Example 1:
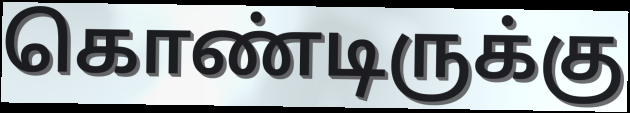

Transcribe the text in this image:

கொண்டிருக்கு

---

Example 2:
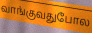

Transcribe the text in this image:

வாங்குவதுபோல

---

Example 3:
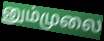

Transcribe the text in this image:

னும்முலை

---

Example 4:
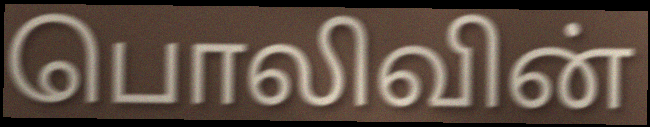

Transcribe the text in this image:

பொலிவின்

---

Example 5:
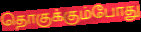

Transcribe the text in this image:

தொகுக்கும்போது